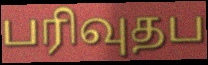
பரிவுதப